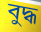
বুদ্ধ